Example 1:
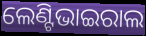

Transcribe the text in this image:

ଲେଣ୍ଟିଭାଇରାଲ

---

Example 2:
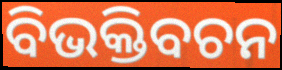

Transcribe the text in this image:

ବିଭକ୍ତିବଚନ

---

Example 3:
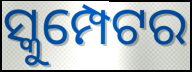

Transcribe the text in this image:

ସ୍କୁମ୍ପେଟର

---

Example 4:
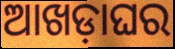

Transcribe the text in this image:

ଆଖଡ଼ାଘର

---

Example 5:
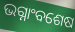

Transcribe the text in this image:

ଭଗ୍ନାଂବଶେଷ